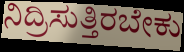
ನಿದ್ರಿಸುತ್ತಿರಬೇಕು